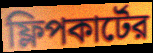
ফ্লিপকার্টের